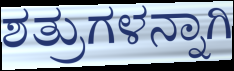
ಶತ್ರುಗಳನ್ನಾಗಿ